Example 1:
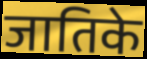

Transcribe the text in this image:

जातिके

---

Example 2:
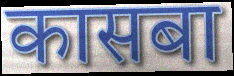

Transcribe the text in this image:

कासबा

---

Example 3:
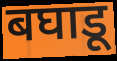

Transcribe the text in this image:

बघाडू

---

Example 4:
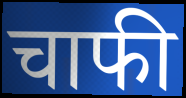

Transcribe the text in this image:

चाफी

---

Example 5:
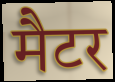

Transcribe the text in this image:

मैटर